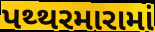
પથ્થરમારામાં